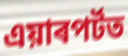
এয়াৰপৰ্টত